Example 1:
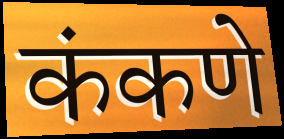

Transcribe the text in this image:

कंकणे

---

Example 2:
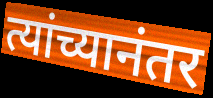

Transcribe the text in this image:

त्यांच्यानंतर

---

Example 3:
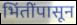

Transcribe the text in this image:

भिंतींपासून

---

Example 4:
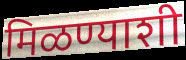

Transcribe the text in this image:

मिळण्याशी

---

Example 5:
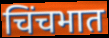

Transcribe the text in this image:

चिंचभात